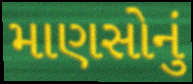
માણસોનું